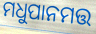
ମଧୁପାନମତ୍ତ